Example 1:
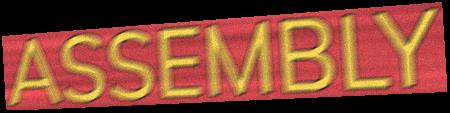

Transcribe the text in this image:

ASSEMBLY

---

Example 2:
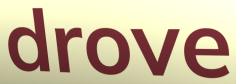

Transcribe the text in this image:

drove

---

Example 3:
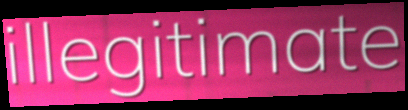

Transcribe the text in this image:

illegitimate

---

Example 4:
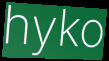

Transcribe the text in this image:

hyko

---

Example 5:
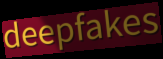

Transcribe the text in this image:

deepfakes